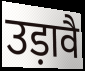
उड़ावै